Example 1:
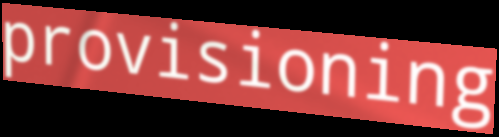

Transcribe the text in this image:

provisioning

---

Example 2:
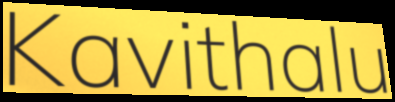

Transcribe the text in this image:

Kavithalu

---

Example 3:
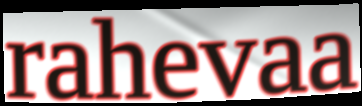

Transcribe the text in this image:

rahevaa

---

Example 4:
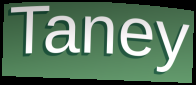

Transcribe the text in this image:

Taney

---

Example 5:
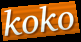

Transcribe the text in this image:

koko